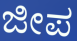
ಜೀಪ